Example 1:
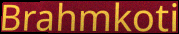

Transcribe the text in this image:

Brahmkoti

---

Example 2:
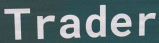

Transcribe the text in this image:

Trader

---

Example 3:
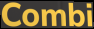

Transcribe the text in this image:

Combi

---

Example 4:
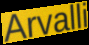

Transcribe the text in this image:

Arvalli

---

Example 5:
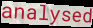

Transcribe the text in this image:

analysed